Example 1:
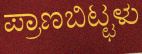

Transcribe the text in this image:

ಪ್ರಾಣಬಿಟ್ಟಳು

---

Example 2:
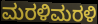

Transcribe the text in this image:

ಮರಳಿಮರಳಿ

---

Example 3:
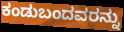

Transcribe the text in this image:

ಕಂಡುಬಂದವರನ್ನು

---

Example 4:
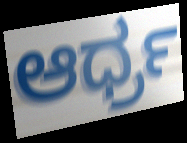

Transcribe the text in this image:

ಆರ್ಧ್ರ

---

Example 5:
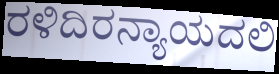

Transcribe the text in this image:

ರಳಿದಿರನ್ಯಾಯದಲಿ